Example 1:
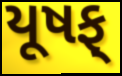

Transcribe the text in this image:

યૂષફ્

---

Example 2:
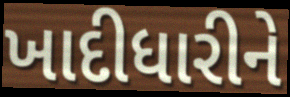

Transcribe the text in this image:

ખાદીધારીને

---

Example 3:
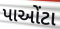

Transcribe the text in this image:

પાઓંટા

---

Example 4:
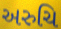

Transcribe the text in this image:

અરુચિ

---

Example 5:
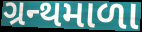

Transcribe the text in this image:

ગ્રન્થમાળા